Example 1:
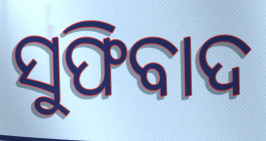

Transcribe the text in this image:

ସୁଫିବାଦ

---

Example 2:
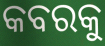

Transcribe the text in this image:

କବରକୁ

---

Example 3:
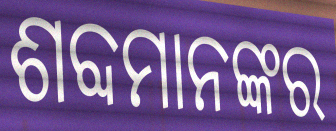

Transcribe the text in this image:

ଶବ୍ଦମାନଙ୍କର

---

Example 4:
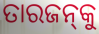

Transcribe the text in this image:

ତାରଜନ୍‌କୁ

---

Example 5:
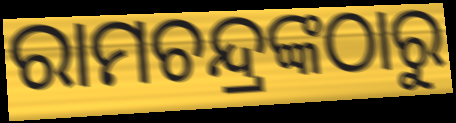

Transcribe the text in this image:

ରାମଚନ୍ଦ୍ରଙ୍କଠାରୁ